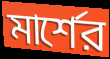
মার্শের